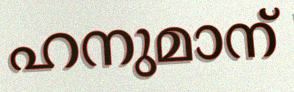
ഹനുമാന്